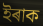
ইৰাক